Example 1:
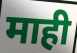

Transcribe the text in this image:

माही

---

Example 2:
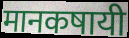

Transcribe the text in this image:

मानकषायी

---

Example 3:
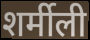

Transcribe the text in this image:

शर्मीली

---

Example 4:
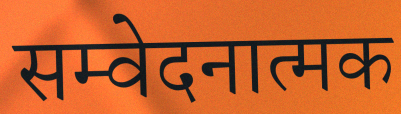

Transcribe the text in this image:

सम्वेदनात्मक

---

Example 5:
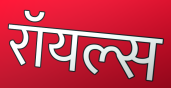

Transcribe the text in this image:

रॉयल्स